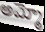
అమ్మో